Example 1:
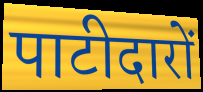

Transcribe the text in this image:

पाटीदारों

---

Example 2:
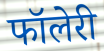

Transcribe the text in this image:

फॉलेरी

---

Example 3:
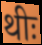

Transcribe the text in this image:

थीः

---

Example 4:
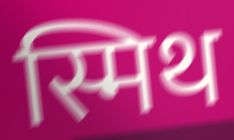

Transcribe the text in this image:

स्मिथ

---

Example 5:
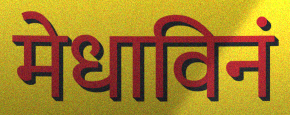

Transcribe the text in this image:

मेधाविनं